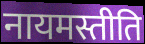
नायमस्तीति